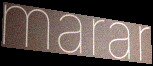
marar